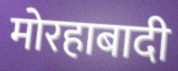
मोरहाबादी